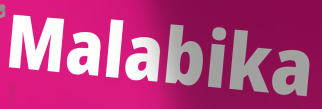
Malabika